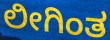
ಲೀಗಿಂತ